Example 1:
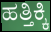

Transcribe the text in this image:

ಹತ್ತಿಕ್ಕಿ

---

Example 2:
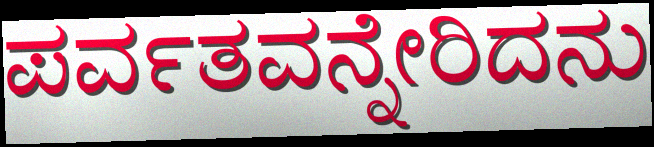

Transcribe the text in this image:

ಪರ್ವತವನ್ನೇರಿದನು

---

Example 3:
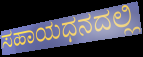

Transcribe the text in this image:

ಸಹಾಯಧನದಲ್ಲಿ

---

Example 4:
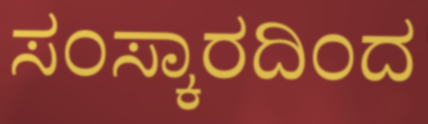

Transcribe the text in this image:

ಸಂಸ್ಕಾರದಿಂದ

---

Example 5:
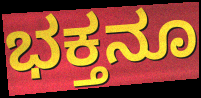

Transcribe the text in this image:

ಭಕ್ತನೂ